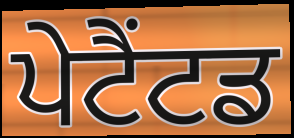
ਪੇਟੈਂਟਡ